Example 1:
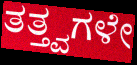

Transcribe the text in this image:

ತತ್ತ್ವಗಳೇ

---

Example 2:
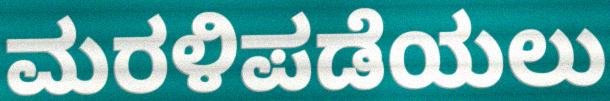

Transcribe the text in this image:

ಮರಳಿಪಡೆಯಲು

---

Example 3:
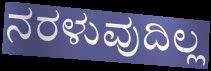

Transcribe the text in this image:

ನರಳುವುದಿಲ್ಲ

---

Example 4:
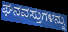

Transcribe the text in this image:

ಘನವಸ್ತುಗಳನ್ನು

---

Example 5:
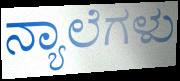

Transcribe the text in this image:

ನ್ಯಾಲೆಗಳು